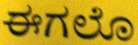
ಈಗಲೊ